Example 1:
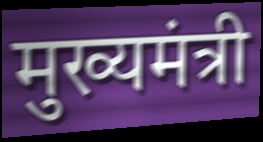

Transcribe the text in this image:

मुख्‍यमंत्री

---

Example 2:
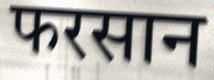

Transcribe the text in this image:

फरसान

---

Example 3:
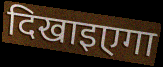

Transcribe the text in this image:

दिखाइएगा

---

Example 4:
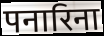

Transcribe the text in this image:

पनारिना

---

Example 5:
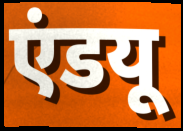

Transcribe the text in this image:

एंडयू